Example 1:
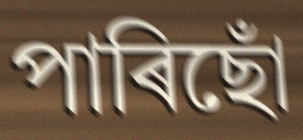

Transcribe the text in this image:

পাৰিছোঁ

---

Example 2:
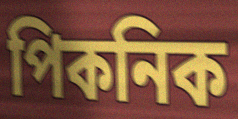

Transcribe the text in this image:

পিকনিক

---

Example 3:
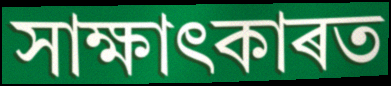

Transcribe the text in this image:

সাক্ষাৎকাৰত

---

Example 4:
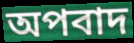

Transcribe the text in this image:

অপবাদ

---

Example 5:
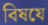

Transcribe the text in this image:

বিষযে